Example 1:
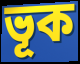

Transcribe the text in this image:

ভূক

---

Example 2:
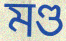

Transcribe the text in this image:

মণ্ড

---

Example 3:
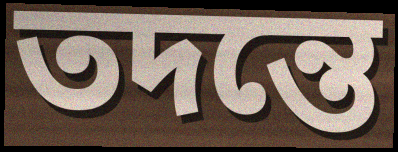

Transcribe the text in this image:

তদন্তে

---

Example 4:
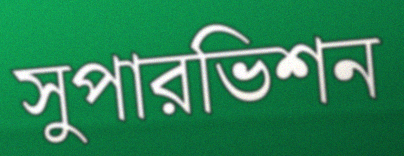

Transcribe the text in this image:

সুপারভিশন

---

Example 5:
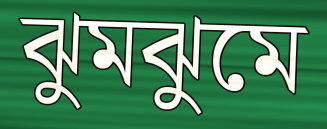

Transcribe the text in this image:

ঝুমঝুমে